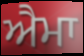
ਐਮਾ